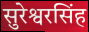
सुरेश्वरसिंह